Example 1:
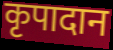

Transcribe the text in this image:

कृपादान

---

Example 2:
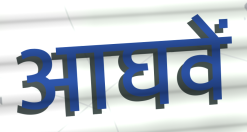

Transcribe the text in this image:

आघवें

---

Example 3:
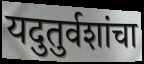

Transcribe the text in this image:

यदुतुर्वशांचा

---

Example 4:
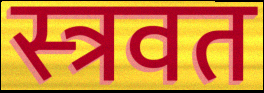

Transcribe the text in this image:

स्त्रवत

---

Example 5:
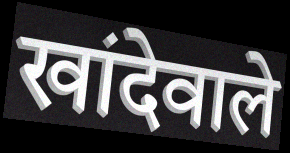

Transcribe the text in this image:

खांदेवाले